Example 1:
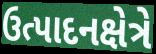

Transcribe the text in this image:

ઉત્પાદનક્ષેત્રે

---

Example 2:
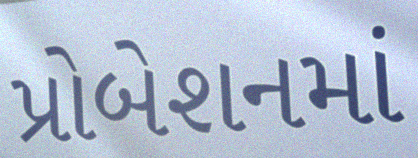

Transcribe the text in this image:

પ્રોબેશનમાં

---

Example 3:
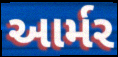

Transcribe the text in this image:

આર્મર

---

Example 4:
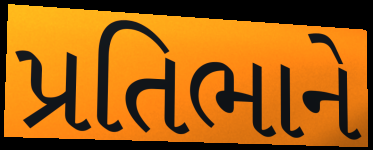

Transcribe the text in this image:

પ્રતિભાને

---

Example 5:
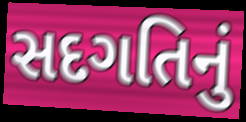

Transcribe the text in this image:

સદગતિનું